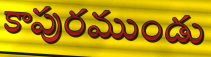
కాపురముండు